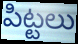
పిట్టలు